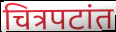
चित्रपटांत